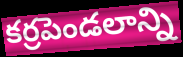
కర్రపెండలాన్ని